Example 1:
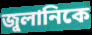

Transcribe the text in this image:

জুলানিকে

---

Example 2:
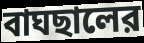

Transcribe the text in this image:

বাঘছালের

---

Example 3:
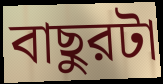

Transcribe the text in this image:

বাছুরটা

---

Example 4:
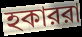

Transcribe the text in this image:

হকাররা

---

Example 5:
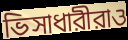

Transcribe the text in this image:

ভিসাধারীরাও